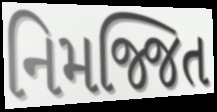
નિમજ્જિત